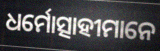
ଧର୍ମୋତ୍ସାହୀମାନେ